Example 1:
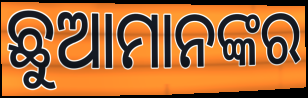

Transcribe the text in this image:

ଛୁଆମାନଙ୍କର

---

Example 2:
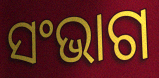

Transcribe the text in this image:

ସଂଭାଗ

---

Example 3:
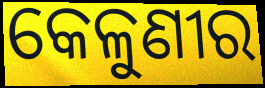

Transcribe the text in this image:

କେଳୁଣୀର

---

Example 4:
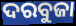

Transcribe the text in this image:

ଦରବୁଜା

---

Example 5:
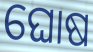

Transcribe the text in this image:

ଘୋଷ